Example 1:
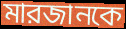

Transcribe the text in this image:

মারজানকে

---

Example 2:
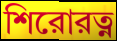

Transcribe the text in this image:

শিরোরত্ন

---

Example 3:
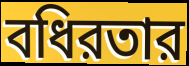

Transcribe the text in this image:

বধিরতার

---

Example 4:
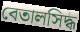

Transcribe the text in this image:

বেতালসিদ্ধ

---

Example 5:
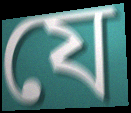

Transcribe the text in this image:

যে